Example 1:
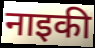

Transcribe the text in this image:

नाइकी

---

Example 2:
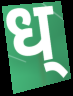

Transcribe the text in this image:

ध्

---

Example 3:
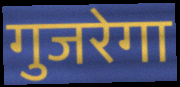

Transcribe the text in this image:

गुजरेगा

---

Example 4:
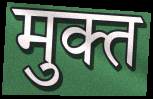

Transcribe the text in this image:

मुक्त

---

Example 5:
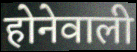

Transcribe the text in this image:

होनेवाली